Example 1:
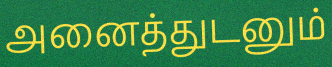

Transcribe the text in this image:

அனைத்துடனும்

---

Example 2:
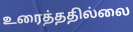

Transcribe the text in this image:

உரைத்ததில்லை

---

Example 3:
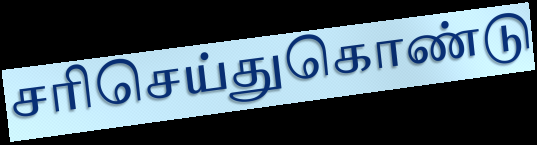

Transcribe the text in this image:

சரிசெய்துகொண்டு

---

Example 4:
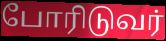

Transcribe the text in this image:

போரிடுவர்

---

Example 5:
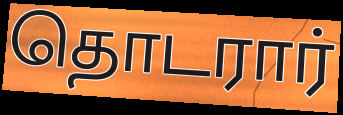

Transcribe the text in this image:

தொடரார்